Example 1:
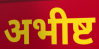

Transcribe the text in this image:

अभीष्ट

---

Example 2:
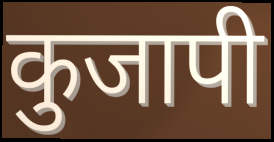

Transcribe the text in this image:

कुजापी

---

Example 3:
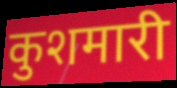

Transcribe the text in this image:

कुशमारी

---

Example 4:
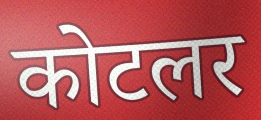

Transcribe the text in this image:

कोटलर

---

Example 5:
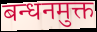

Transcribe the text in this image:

बन्धनमुक्त